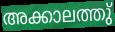
അക്കാലത്തു്